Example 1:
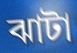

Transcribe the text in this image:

ঝাটা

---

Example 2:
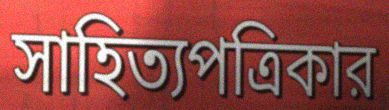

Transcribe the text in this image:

সাহিত্যপত্রিকার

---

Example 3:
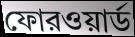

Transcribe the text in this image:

ফোরওয়ার্ড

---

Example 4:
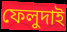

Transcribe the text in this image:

ফেলুদাই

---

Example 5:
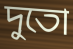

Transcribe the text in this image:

দুতো